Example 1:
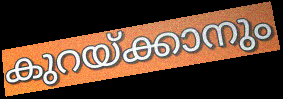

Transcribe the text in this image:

കുറയ്ക്കാനും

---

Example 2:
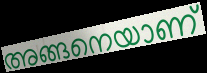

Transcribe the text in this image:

അങ്ങനെയാണ്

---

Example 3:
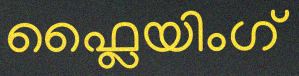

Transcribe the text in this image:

ഫ്ലൈയിംഗ്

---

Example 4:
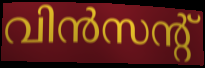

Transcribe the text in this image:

വിൻസന്റ്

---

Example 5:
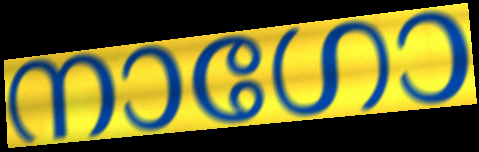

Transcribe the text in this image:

നാഗോ